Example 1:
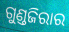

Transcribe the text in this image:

ଗୁଣ୍ଡଜିରାର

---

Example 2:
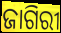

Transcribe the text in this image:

ଜାଗିରୀ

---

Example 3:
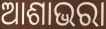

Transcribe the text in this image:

ଆଶାଭରା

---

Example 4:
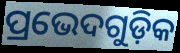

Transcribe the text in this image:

ପ୍ରଭେଦଗୁଡ଼ିକ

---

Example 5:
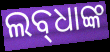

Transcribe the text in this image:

ଲବ୍‌ଧାଙ୍କ